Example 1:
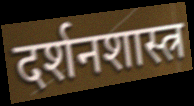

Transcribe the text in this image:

दर्शनशास्त्र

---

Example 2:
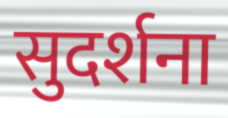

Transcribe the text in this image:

सुदर्शना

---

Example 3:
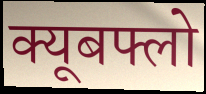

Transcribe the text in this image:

क्यूबफ्लो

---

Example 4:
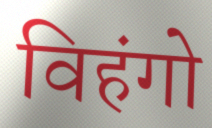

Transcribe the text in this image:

विहंगो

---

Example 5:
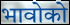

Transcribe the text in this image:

भावोको